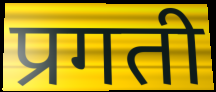
प्रगती